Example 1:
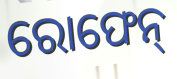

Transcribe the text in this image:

ରୋଫେନ୍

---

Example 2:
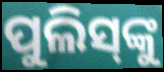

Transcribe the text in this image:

ପୁଲିସ୍‌ଙ୍କୁ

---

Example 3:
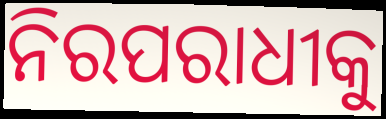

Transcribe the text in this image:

ନିରପରାଧୀକୁ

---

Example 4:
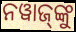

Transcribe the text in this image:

ନୱାଜ୍‍ଙ୍କୁ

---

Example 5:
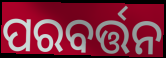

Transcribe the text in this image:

ପରବର୍ତ୍ତନ